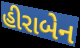
હીરાબેન